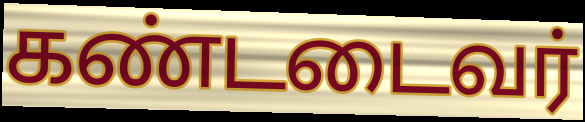
கண்டடைவர்